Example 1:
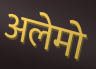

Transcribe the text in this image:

अलेमो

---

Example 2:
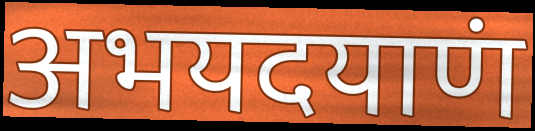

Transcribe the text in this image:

अभयदयाणं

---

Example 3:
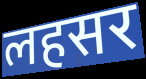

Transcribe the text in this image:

लहसर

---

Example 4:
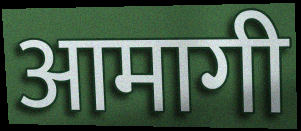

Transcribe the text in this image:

आमागी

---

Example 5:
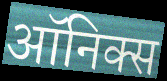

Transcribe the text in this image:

ऑनिक्स